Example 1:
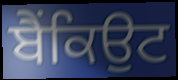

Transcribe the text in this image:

ਬੈਂਕਿਉਟ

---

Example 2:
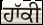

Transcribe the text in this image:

ਹਾੱਕੀ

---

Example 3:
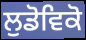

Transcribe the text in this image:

ਲੁਡੋਵਿਕੋ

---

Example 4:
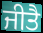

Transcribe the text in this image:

ਜੀਤੈ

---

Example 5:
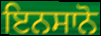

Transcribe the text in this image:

ਇਨਸਾਨੋ